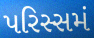
પરિસ્સમં